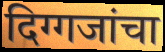
दिग्गजांचा